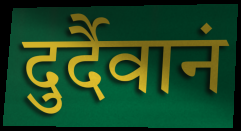
दुर्दैवानं